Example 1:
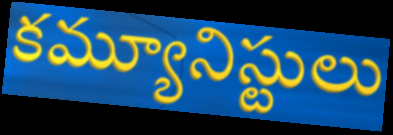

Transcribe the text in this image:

కమ్యూనిస్టులు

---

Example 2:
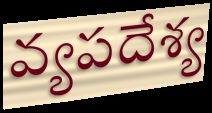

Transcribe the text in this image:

వ్యపదేశ్య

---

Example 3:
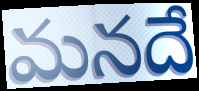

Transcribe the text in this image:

మనదే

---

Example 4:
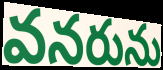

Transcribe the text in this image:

వనరును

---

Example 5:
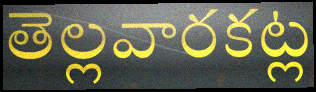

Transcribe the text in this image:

తెల్లవారకట్ల